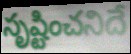
సృష్టించనిదే